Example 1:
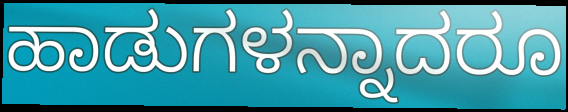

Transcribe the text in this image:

ಹಾಡುಗಳನ್ನಾದರೂ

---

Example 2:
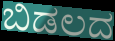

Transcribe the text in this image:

ಬಿಡಲದ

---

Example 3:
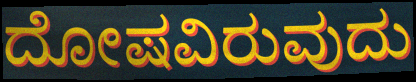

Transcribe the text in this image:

ದೋಷವಿರುವುದು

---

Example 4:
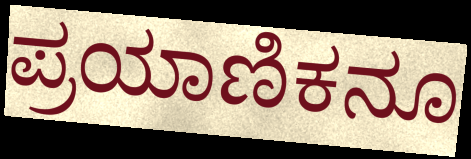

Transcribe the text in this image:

ಪ್ರಯಾಣಿಕನೂ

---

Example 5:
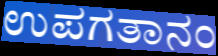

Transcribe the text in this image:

ಉಪಗತಾನಂ